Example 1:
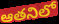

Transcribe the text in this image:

ఆతనిలో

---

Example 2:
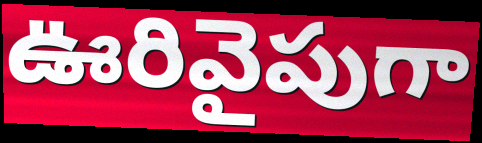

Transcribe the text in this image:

ఊరివైపుగా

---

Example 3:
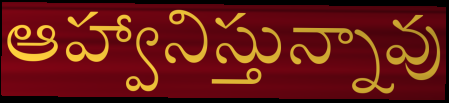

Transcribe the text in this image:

ఆహ్వానిస్తున్నావు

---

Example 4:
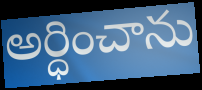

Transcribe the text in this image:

అర్ధించాను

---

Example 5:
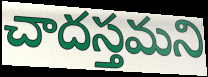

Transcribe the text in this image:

చాదస్తమని